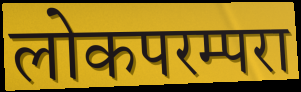
लोकपरम्परा